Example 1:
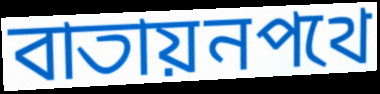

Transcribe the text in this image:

বাতায়নপথে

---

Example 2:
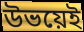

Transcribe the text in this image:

উভয়েই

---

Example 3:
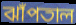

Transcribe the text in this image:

ঝাঁপতাল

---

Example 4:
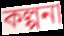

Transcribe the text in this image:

কল্পনা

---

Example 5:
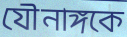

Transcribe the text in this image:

যৌনাঙ্গকে